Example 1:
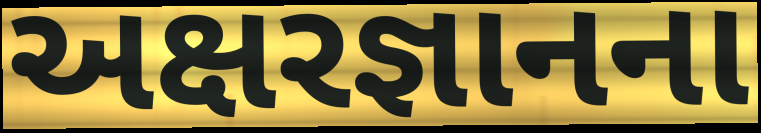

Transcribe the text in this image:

અક્ષરજ્ઞાનના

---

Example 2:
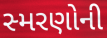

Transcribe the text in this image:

સ્મરણોની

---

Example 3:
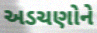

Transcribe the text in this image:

અડચણોને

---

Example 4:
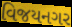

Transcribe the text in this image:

વિજયનગર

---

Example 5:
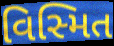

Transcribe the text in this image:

વિસ્મિત